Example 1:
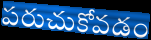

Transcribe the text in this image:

పరుచుకోవడం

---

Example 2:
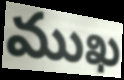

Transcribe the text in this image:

ముఖ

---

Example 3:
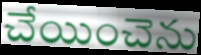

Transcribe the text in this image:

చేయించెను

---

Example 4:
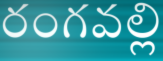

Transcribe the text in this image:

రంగవల్లి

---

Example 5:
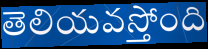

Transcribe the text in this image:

తెలియవస్తోంది